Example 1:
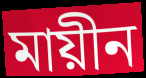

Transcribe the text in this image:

মায়ীন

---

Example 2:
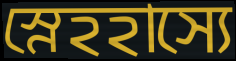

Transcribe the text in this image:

স্নেহহাস্যে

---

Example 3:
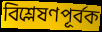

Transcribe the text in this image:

বিশ্লেষণপূর্বক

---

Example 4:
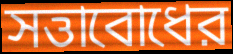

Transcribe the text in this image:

সত্তাবোধের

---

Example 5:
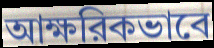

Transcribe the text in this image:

আক্ষরিকভাবে